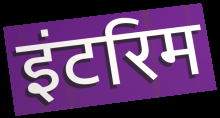
इंटरिम